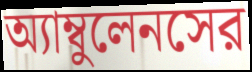
অ্যাম্বুলেনসের